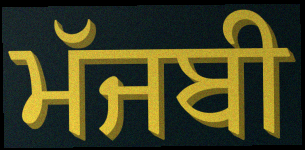
ਮੱਜਬੀ